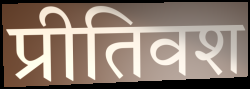
प्रीतिवश